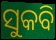
ସୁକବି